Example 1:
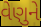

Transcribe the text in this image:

વેણુને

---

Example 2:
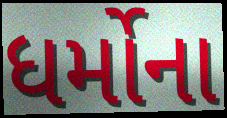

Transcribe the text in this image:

ધર્મોના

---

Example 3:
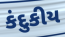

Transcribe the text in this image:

કંદુકીય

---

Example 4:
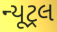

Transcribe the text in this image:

ન્યૂટ્રલ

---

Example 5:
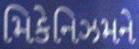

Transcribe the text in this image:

મિકેનિઝમને